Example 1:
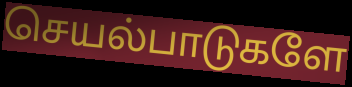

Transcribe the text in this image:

செயல்பாடுகளே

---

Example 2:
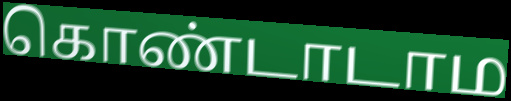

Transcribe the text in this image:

கொண்டாடாம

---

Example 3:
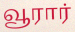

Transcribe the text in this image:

வூரார்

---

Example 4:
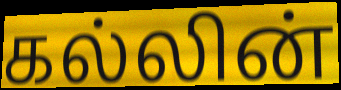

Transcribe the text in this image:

கல்லின்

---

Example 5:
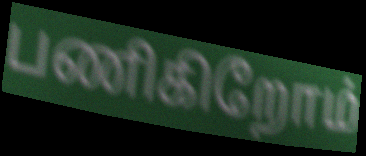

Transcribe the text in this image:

பணிகிறோம்